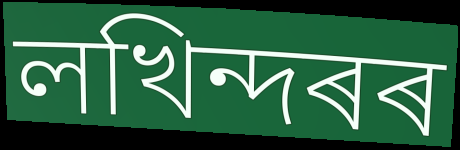
লখিন্দৰৰ